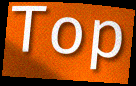
Top